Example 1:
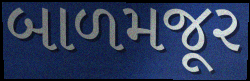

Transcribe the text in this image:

બાળમજૂર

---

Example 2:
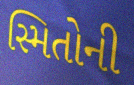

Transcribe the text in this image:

સ્મિતોની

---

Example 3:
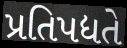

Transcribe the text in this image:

પ્રતિપદ્યતે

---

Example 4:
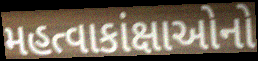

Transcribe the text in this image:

મહત્વાકાંક્ષાઓનો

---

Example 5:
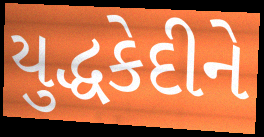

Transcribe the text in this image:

યુદ્ધકેદીને